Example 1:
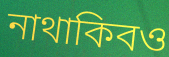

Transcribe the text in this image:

নাথাকিবও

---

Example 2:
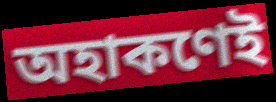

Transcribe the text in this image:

অহাকণেই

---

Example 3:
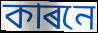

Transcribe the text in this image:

কাৰনে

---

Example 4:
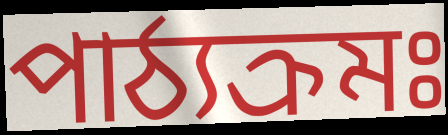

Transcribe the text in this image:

পাঠ্যক্ৰমঃ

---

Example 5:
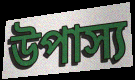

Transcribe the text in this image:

উপাস্য